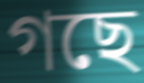
গছে